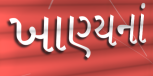
ખાણ્યનાં